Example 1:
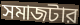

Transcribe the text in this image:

সমাজটার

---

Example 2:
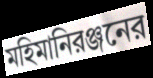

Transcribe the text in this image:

মহিমানিরঞ্জনের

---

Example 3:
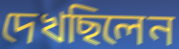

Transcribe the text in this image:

দেখছিলেন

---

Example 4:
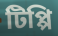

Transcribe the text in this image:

টিপ্পি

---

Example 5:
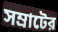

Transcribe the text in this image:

সম্রাটের